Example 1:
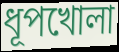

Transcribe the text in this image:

ধূপখোলা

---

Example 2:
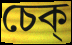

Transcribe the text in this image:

চেক্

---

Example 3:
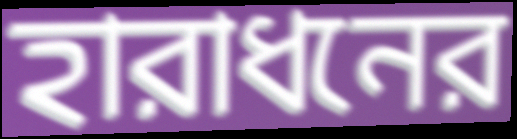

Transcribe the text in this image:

হারাধনের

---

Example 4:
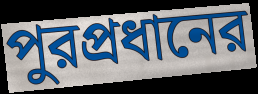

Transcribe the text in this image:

পুরপ্রধানের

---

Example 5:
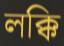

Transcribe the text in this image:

লক্কি